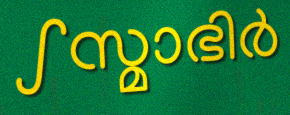
ഽസ്മാഭിർ